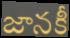
జానకీ